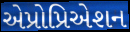
એપ્રોપ્રિએશન